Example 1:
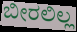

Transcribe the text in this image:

ಬೀರಲಿಲ್ಲ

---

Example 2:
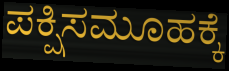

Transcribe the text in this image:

ಪಕ್ಷಿಸಮೂಹಕ್ಕೆ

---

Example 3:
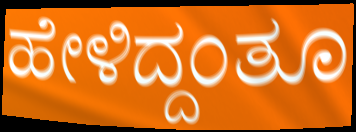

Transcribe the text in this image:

ಹೇಳಿದ್ದಂತೂ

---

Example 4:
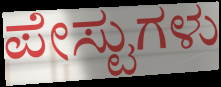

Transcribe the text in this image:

ಪೇಸ್ಟುಗಳು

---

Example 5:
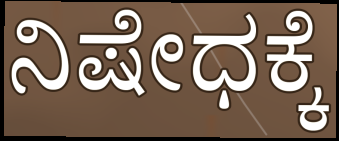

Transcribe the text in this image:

ನಿಷೇಧಕ್ಕೆ